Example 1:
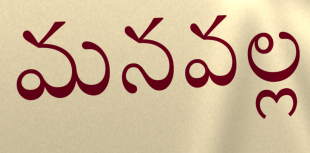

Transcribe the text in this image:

మనవల్ల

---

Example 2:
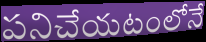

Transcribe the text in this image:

పనిచేయటంలోనే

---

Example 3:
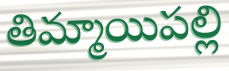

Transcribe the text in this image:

తిమ్మాయిపల్లి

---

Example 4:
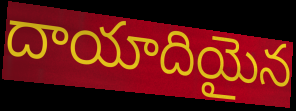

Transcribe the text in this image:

దాయాదియైన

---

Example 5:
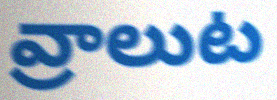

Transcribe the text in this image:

వ్రాలుట